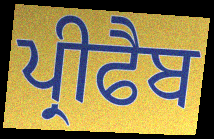
ਪ੍ਰੀਫੈਬ